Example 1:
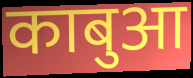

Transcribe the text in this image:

काबुआ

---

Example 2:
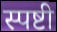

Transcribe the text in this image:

स्पष्टी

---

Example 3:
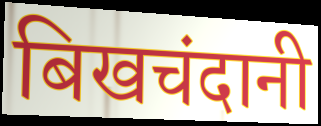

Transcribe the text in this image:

बिखचंदानी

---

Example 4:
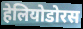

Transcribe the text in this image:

हेलियोडोरस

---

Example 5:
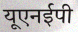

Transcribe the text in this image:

यूएनईपी